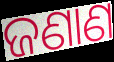
ଜଣାଣ